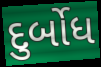
દુર્બોધ